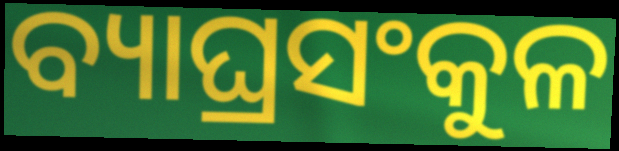
ବ୍ୟାଘ୍ରସଂକୁଳ